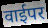
वाईपर